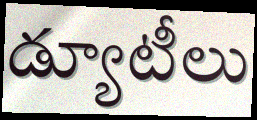
డ్యూటీలు